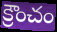
క్రౌంచం